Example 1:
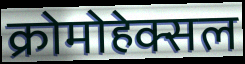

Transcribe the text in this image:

क्रोमोहेक्सल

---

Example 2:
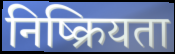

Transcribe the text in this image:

निष्क्रियता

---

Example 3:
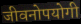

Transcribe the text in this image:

जीवनोपयोगी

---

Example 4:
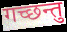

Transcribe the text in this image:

गच्छन्तु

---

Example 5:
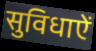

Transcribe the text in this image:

सुविधाऐं